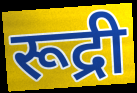
रूद्री